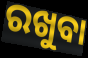
ରଖୁବା